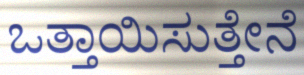
ಒತ್ತಾಯಿಸುತ್ತೇನೆ